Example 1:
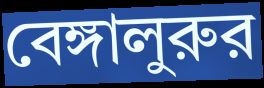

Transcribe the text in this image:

বেঙ্গালুরুর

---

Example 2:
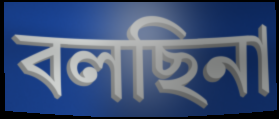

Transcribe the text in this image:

বলছিনা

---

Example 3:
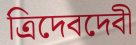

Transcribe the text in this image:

ত্রিদেবদেবী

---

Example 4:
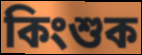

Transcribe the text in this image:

কিংশুক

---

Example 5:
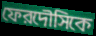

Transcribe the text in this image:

ফেরদৌসিকে